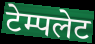
टेम्पलेट